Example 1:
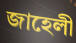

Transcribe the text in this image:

জাহেলী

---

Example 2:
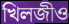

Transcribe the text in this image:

খিলজীও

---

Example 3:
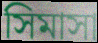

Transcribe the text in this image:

সিমাসা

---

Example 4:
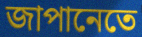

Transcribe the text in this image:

জাপানেতে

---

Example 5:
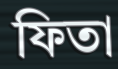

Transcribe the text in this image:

ফিতা